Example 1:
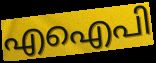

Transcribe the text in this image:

എഐപി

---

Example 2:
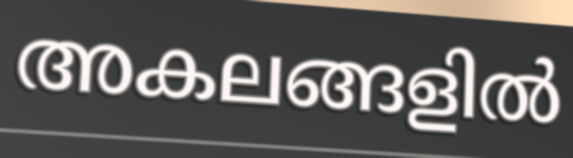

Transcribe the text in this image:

അകലങ്ങളിൽ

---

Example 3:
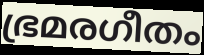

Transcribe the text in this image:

ഭ്രമരഗീതം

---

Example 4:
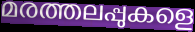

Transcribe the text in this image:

മരത്തലപ്പുകളെ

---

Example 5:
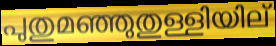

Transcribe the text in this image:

പുതുമഞ്ഞുതുള്ളിയില്